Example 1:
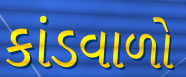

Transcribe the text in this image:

કાંડવાળો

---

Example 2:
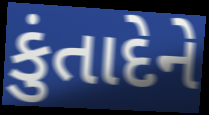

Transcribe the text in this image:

કુંતાદેને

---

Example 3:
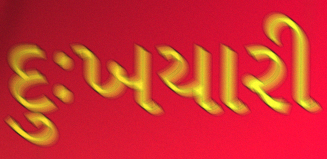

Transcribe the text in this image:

દુઃખયારી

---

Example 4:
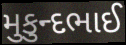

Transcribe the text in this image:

મુકુન્દભાઈ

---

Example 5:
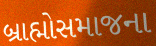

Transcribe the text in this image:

બ્રાહ્મોસમાજના